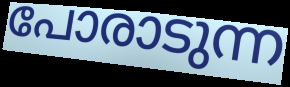
പോരാടുന്ന